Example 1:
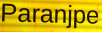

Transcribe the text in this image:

Paranjpe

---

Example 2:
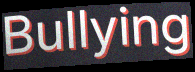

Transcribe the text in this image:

Bullying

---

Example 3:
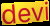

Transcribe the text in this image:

devi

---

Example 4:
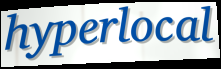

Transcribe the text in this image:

hyperlocal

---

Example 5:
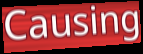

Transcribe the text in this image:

Causing